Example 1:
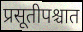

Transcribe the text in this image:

प्रसूतीपश्चात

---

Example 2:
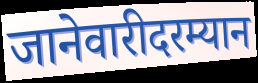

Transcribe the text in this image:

जानेवारीदरम्यान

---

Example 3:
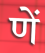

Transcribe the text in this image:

णें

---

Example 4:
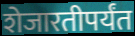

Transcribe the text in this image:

शेजारतीपर्यंत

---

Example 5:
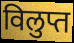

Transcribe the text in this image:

विलुप्त